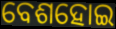
ବେଶହୋଇ